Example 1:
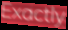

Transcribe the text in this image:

Exactly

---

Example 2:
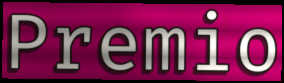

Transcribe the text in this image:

Premio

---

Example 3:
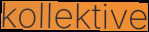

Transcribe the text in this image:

kollektive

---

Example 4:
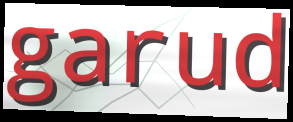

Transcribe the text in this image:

garud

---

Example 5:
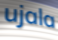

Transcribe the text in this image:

ujala